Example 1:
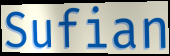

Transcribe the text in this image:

Sufian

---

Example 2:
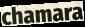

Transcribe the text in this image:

chamara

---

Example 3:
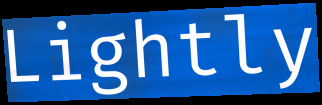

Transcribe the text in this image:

Lightly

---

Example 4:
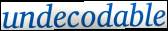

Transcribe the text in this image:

undecodable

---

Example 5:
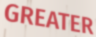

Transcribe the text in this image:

GREATER